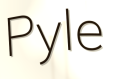
Pyle